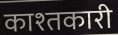
काश्तकारी